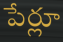
పేర్లూ